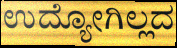
ಉದ್ಯೋಗಿಲ್ಲದ